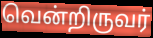
வென்றிருவர்